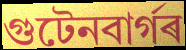
গুটেনবাৰ্গৰ